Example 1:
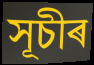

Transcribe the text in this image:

সূচীৰ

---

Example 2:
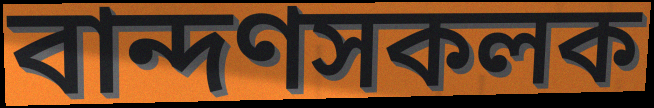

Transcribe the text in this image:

বান্দণসকলক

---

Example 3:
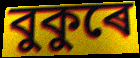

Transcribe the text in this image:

বুকুৰে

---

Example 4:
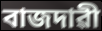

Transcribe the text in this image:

বাজদাৱী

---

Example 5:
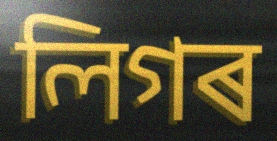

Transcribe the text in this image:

লিগৰ